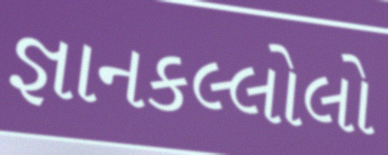
જ્ઞાનકલ્લોલો